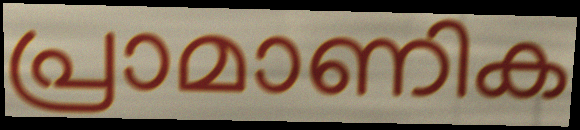
പ്രാമാണിക